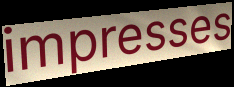
impresses